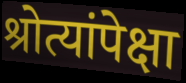
श्रोत्यांपेक्षा